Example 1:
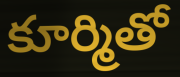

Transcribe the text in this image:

కూర్మితో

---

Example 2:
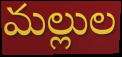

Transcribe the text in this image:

మల్లుల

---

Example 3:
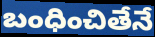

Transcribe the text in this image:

బంధించితేనే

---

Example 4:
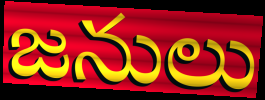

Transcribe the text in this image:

జనులు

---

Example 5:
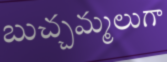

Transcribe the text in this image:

బుచ్చమ్మలుగా